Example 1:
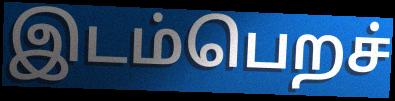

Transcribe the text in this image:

இடம்பெறச்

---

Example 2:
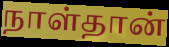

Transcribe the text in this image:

நாள்தான்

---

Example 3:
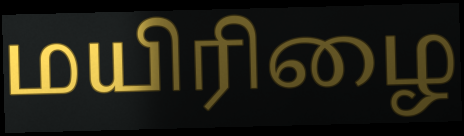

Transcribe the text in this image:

மயிரிழை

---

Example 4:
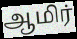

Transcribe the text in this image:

ஆமிர்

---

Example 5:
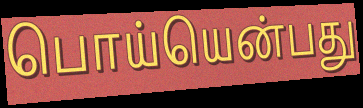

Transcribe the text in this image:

பொய்யென்பது